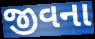
જીવના